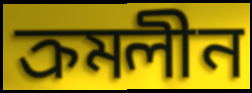
ক্রমলীন